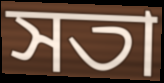
সতা